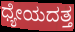
ಧ್ಯೇಯದತ್ತ